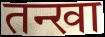
तन्खा